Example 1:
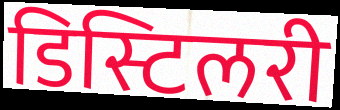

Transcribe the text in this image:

डिस्टिलरी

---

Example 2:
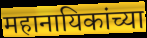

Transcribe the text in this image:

महानायिकांच्या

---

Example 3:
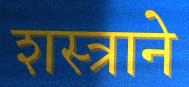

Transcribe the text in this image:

शस्त्राने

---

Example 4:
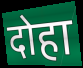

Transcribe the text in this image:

दोहा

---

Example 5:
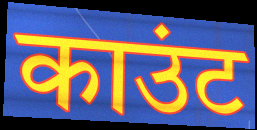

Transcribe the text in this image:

काउंट